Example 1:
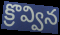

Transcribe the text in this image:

క్రొవ్విన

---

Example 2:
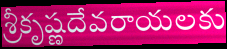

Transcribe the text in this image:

శ్రీకృష్ణదేవరాయలకు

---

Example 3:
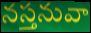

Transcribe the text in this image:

నస్తనువా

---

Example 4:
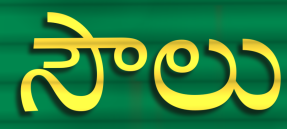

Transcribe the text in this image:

సౌలు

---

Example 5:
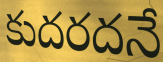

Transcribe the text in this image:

కుదరదనే